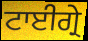
ਟਾਈਗ੍ਰੇ